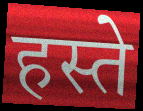
हस्ते